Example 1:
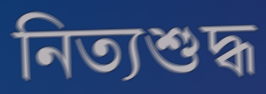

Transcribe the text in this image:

নিত্যশুদ্ধ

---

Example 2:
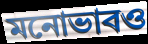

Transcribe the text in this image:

মনোভাবও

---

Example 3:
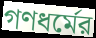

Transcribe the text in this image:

গণধর্মের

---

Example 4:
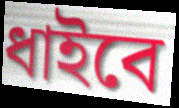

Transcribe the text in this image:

ধাইবে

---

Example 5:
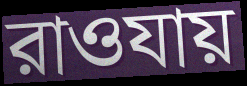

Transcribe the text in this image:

রাওযায়